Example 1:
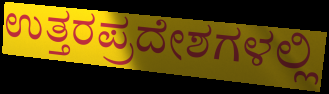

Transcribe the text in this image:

ಉತ್ತರಪ್ರದೇಶಗಳಲ್ಲಿ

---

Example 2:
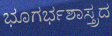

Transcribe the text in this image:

ಭೂಗರ್ಭಶಾಸ್ತ್ರದ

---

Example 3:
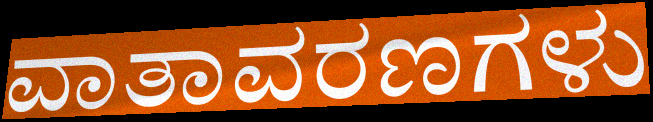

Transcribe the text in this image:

ವಾತಾವರಣಗಳು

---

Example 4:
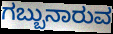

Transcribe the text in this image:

ಗಬ್ಬುನಾರುವ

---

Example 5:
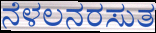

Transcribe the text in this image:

ನೆಳಲನರಸುತ